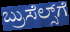
ಬ್ರುಸೆಲ್ಸ್‌ಗೆ